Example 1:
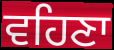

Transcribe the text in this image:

ਵਹਿਣਾ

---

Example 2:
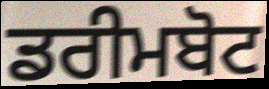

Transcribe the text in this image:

ਡਰੀਮਬੋਟ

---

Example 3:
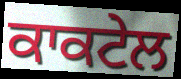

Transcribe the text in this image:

ਕਾਕਟੇਲ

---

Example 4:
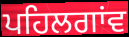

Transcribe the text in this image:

ਪਹਿਲਗਾਂਵ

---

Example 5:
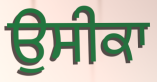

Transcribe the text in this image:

ਉਸੀਕਾ